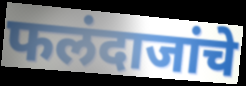
फलंदाजांचे